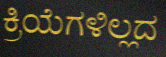
ಕ್ರಿಯೆಗಳಿಲ್ಲದ